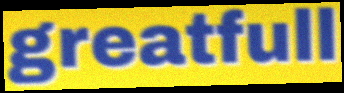
greatfull